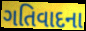
ગતિવાદના